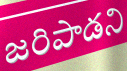
జరిపాడని